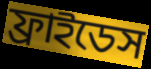
ফ্রাইডেস